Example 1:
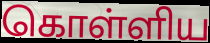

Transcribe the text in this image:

கொள்ளிய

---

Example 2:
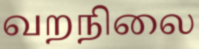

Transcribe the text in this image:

வறநிலை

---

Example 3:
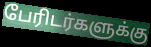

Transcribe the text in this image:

பேரிடர்களுக்கு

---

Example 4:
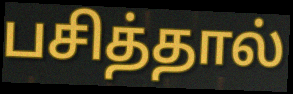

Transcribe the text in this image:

பசித்தால்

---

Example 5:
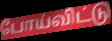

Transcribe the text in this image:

போய்விட்டு